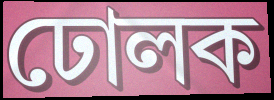
ঢোলক